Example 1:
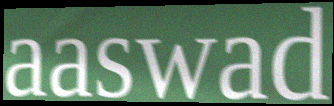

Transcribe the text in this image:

aaswad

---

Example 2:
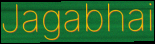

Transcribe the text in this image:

Jagabhai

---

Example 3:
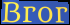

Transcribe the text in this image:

Bror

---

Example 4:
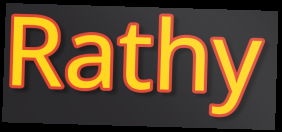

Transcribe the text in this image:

Rathy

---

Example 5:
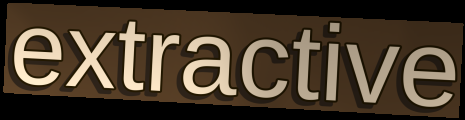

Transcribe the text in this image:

extractive